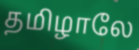
தமிழாலே